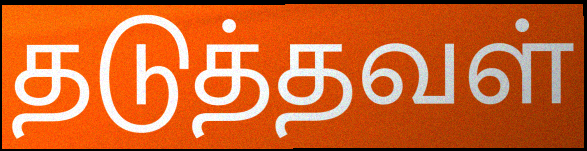
தடுத்தவள்